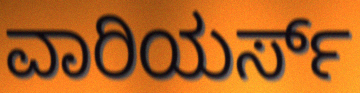
ವಾರಿಯರ್ಸ್